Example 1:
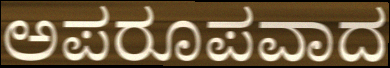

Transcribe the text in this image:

ಅಪರೂಪವಾದ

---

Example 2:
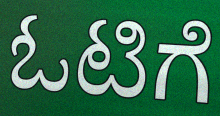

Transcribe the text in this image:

ಓಟಿಗೆ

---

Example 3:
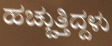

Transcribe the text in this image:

ಹಚ್ಚುತ್ತಿದ್ದಳು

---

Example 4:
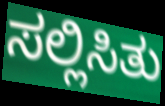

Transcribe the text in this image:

ಸಲ್ಲಿಸಿತು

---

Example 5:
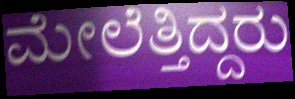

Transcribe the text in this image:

ಮೇಲೆತ್ತಿದ್ದರು